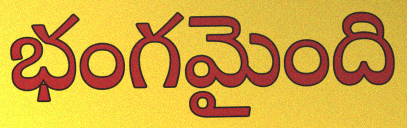
భంగమైంది